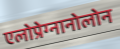
एलोप्रेग्नानोलोन